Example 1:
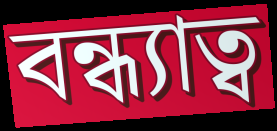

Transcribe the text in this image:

বন্ধ্যাত্ব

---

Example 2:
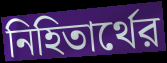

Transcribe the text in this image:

নিহিতার্থের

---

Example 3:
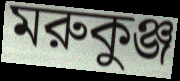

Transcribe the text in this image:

মরুকুঞ্জ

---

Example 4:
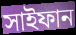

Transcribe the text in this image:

সাইফান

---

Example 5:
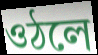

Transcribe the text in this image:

ওঠলে